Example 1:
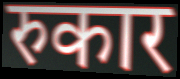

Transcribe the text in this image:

रुकार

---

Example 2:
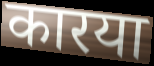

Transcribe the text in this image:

कारया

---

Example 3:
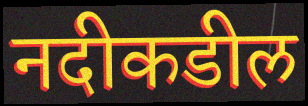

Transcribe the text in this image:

नदीकडील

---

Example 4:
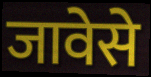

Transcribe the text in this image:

जावेसे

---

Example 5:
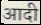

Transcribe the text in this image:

आदी